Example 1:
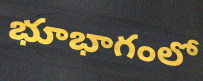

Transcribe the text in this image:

భూభాగంలో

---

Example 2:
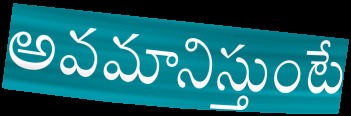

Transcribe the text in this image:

అవమానిస్తుంటే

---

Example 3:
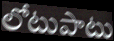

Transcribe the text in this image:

లోటుపాటు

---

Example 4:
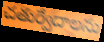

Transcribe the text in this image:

చతుర్వేదాలను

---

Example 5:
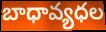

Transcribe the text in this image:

బాధావ్యధల